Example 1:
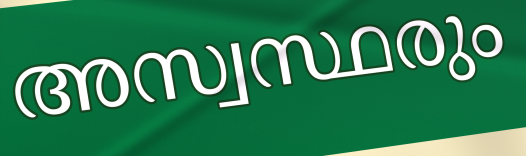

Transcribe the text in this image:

അസ്വസ്ഥരും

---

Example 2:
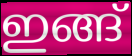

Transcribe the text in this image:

ഇങ്ങ്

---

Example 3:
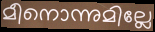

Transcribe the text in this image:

മീനൊന്നുമില്ലേ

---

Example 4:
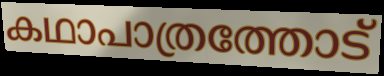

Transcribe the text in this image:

കഥാപാത്രത്തോട്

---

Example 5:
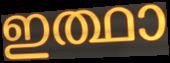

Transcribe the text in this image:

ഇത്ഥാ